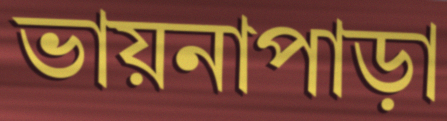
ভায়নাপাড়া